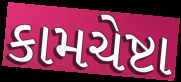
કામચેષ્ટા